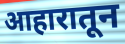
आहारातून